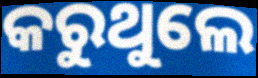
କରୁଥୁଲେ